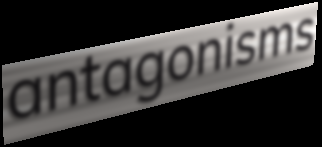
antagonisms